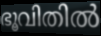
ഭൂവിതിൽ